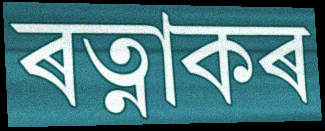
ৰত্নাকৰ